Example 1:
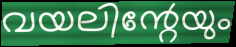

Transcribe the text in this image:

വയലിന്റേയും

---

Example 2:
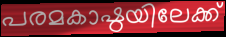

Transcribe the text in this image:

പരമകാഷ്ഠയിലേക്ക്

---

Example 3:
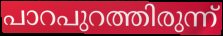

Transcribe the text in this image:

പാറപുറത്തിരുന്ന്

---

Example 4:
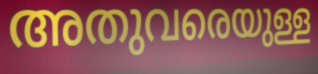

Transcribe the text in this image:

അതുവരെയുള്ള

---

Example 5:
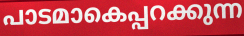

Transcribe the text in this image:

പാടമാകെപ്പറക്കുന്ന